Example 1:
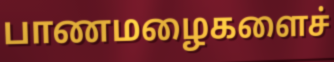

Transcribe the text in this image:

பாணமழைகளைச்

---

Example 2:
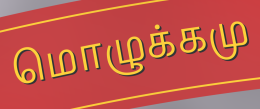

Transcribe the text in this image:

மொழுக்கமு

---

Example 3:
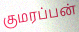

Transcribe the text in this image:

குமரப்பன்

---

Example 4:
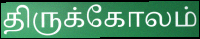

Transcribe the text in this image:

திருக்கோலம்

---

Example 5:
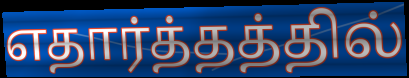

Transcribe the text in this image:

எதார்த்தத்தில்